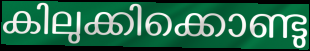
കിലുക്കിക്കൊണ്ടു